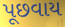
પૂછવાય